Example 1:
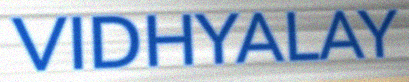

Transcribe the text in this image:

VIDHYALAY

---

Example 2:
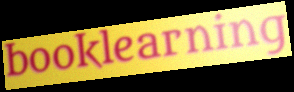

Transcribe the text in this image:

booklearning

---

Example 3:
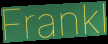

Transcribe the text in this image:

Frankl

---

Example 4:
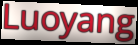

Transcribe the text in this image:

Luoyang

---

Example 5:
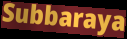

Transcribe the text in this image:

Subbaraya